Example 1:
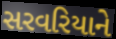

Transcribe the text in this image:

સરવરિયાને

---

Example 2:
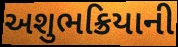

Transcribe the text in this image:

અશુભક્રિયાની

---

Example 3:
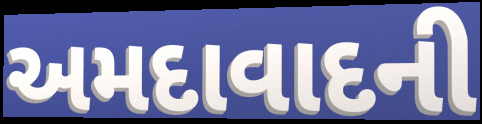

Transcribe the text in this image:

અમદાવાદની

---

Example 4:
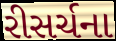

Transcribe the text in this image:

રીસર્ચના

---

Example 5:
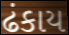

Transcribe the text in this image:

ઢંકાય